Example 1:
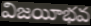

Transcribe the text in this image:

విజయీభవ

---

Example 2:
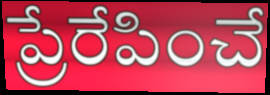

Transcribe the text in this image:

ప్రేరేపించే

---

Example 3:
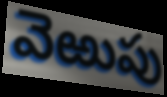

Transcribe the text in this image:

వెఱుపు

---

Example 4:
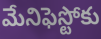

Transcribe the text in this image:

మేనిఫెస్టోకు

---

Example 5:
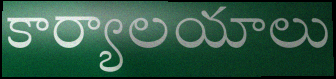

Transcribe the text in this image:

కార్యాలయాలు